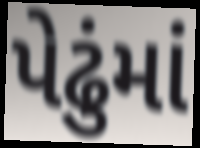
પેઢુંમાં